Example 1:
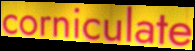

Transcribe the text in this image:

corniculate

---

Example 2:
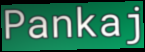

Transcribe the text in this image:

Pankaj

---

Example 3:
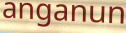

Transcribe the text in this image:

anganun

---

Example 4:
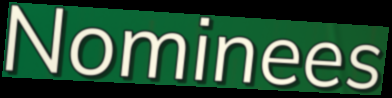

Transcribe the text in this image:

Nominees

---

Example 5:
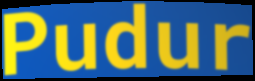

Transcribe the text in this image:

Pudur